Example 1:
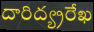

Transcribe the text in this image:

దారిద్య్రరేఖ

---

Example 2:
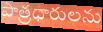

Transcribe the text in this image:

పాత్రధారులను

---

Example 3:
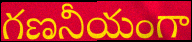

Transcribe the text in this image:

గణనీయంగా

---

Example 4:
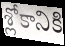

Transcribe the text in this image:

శ్లోకానికి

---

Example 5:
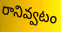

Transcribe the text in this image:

రానివ్వటం